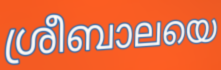
ശ്രീബാലയെ